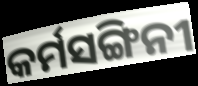
କର୍ମସଙ୍ଗିନୀ